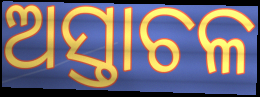
ଅସ୍ତାଚଳ